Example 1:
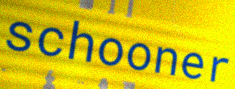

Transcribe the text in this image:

schooner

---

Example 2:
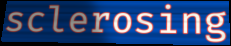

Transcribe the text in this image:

sclerosing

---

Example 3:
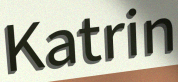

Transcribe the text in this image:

Katrin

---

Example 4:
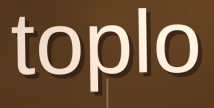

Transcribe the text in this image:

toplo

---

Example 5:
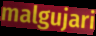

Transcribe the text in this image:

malgujari